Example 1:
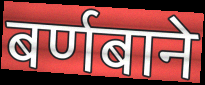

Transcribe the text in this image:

बर्णबाने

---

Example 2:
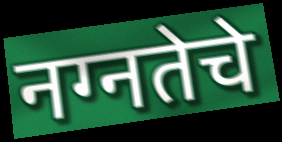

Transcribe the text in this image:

नग्नतेचे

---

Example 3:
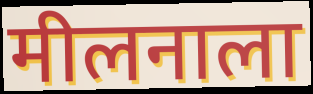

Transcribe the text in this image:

मीलनाला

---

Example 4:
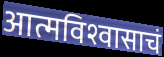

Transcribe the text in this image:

आत्मविश्वासाचं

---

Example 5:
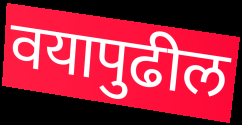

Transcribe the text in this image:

वयापुढील